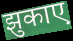
झुकाए